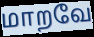
மாறவே